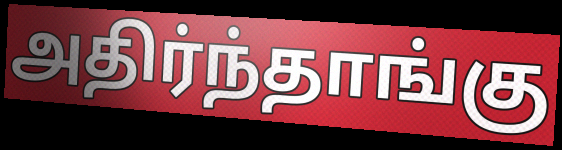
அதிர்ந்தாங்கு